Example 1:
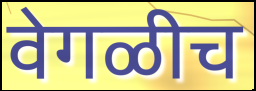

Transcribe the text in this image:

वेगळीच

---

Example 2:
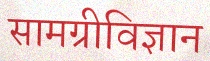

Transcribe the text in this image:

सामग्रीविज्ञान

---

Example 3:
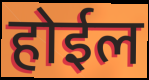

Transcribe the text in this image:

होईल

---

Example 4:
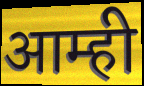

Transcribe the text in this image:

आम्ही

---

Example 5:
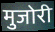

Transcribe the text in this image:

मुजोरी